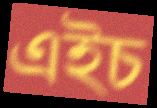
এইচ